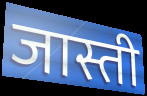
जास्ती